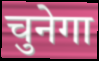
चुनेगा